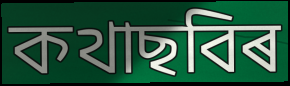
কথাছবিৰ